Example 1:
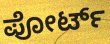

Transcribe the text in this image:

ಪೋರ್ಟ್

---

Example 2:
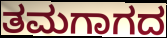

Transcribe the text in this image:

ತಮಗಾಗದ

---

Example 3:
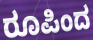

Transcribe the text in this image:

ರೂಪಿಂದ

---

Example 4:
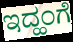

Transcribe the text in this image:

ಇದ್ಹಂಗೆ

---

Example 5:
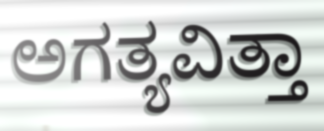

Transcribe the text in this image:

ಅಗತ್ಯವಿತ್ತಾ